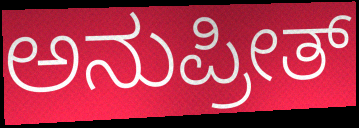
ಅನುಪ್ರೀತ್